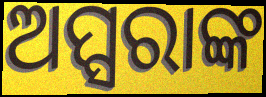
ଅପ୍ସରାଙ୍କ